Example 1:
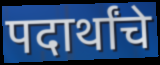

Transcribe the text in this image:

पदार्थांचे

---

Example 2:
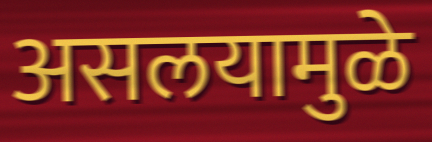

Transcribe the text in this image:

असलयामुळे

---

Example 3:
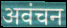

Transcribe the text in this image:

अवंचन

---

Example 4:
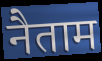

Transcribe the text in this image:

नैताम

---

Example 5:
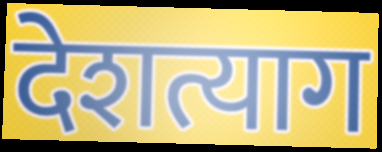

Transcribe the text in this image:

देशत्याग